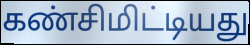
கண்சிமிட்டியது